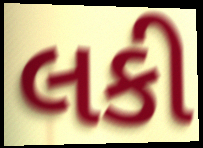
લકી